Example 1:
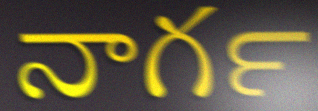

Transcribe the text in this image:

నాగర్‍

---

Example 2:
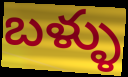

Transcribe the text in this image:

బళ్ళు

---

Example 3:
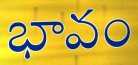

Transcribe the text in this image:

భావం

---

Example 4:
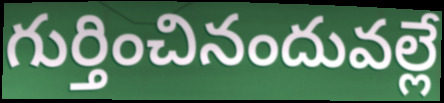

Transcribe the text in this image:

గుర్తించినందువల్లే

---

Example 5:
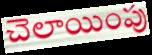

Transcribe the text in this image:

చెలాయింపు